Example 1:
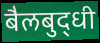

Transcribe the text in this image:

बैलबुद्धी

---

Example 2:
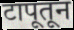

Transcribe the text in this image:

टापूतून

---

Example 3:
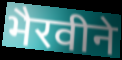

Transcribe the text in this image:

भैरवीने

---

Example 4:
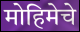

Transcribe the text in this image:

मोहिमेचे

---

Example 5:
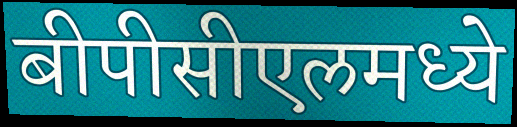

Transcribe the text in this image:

बीपीसीएलमध्ये